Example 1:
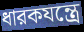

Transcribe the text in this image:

ধারকযন্ত্রে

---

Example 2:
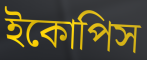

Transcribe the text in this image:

ইকোপিস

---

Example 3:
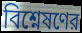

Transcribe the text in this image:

বিশ্নেষণের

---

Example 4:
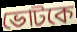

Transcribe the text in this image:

ভোটকে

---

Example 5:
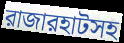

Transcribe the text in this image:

রাজারহাটসহ